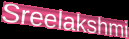
Sreelakshmi